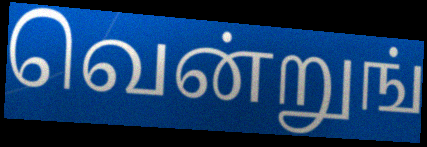
வென்றுங்